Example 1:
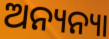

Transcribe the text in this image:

ଅନ୍ୟନ୍ୟା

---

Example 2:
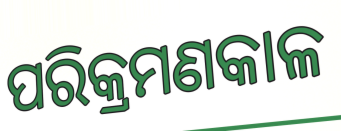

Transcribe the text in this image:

ପରିକ୍ରମଣକାଳ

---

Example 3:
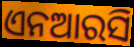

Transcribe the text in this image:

ଏନଆରସି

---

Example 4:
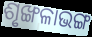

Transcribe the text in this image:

ଶୃଙ୍ଖଳାଭଙ୍ଗ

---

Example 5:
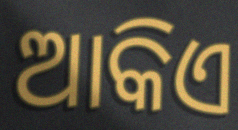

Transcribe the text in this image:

ଆକିଏ